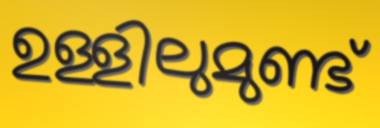
ഉള്ളിലുമുണ്ട്